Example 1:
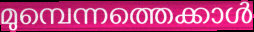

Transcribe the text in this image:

മുമ്പെന്നത്തെക്കാൾ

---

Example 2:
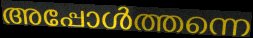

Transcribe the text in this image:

അപ്പോൾത്തന്നെ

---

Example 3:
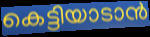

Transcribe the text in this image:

കെട്ടിയാടാൻ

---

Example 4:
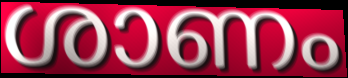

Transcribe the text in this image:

ശാണം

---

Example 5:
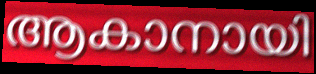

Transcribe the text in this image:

ആകാനായി